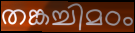
തങ്കച്ചിമഠം